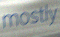
mostly